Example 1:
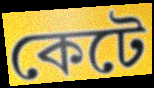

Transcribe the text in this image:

কেটে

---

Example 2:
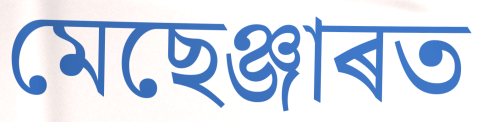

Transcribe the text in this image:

মেছেঞ্জাৰত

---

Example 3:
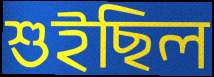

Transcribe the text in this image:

শুইছিল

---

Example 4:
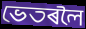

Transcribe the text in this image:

ভেতৰলৈ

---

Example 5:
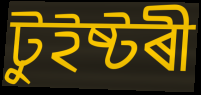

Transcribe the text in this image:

টুইষ্টৰী